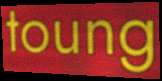
toung